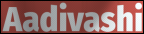
Aadivashi